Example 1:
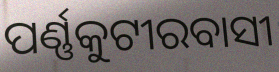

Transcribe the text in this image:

ପର୍ଣ୍ଣକୁଟୀରବାସୀ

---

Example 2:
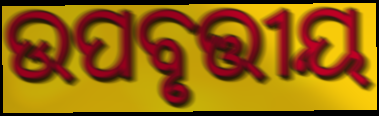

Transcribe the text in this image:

ଉପବୃତ୍ତୀୟ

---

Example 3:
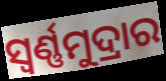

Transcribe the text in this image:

ସ୍ୱର୍ଣ୍ଣମୁଦ୍ରାର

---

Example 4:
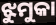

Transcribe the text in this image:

ଝୁମୁକା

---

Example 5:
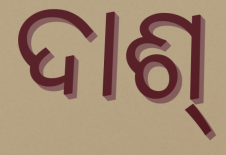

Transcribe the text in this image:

ଦାଶ୍